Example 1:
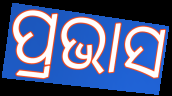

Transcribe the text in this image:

ପ୍ରଭାସ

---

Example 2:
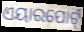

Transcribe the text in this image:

ଏୟାରପୋର୍ଟ୍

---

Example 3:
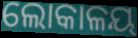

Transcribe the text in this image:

ଲୋକାଳୟ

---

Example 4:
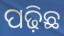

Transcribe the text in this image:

ପଢ଼ିଛ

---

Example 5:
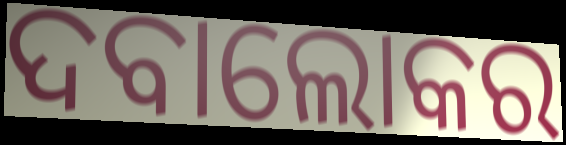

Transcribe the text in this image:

ଦବାଲୋକର